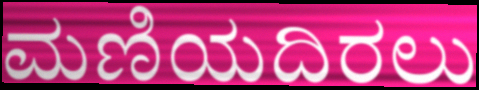
ಮಣಿಯದಿರಲು